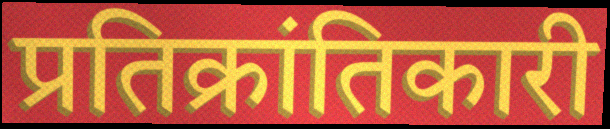
प्रतिक्रांतिकारी